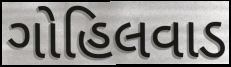
ગોહિલવાડ